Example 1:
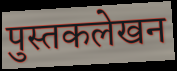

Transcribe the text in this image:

पुस्तकलेखन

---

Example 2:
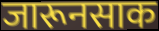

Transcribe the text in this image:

जारूनसाक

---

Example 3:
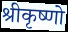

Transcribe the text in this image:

श्रीकृष्णो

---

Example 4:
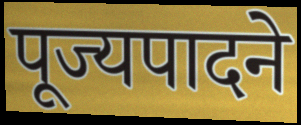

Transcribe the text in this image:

पूज्यपादने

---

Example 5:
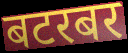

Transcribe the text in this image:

बटरबर